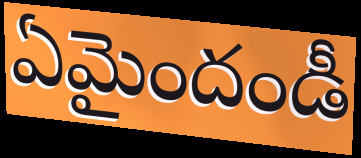
ఏమైందండీ